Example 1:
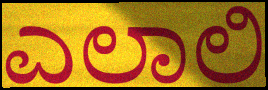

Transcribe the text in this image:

ಎಲಾಲಿ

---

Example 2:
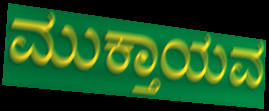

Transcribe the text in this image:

ಮುಕ್ತಾಯವ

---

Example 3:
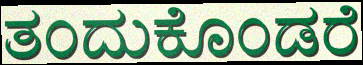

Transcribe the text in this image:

ತಂದುಕೊಂಡರೆ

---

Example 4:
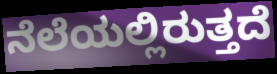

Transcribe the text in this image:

ನೆಲೆಯಲ್ಲಿರುತ್ತದೆ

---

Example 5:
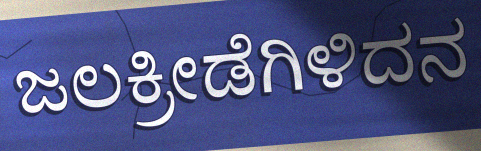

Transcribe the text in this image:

ಜಲಕ್ರೀಡೆಗಿಳಿದನ